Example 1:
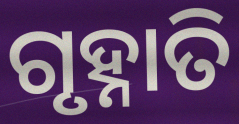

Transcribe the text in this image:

ଗୃହ୍ନାତି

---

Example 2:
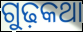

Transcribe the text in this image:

ଗୁଢ଼କଥା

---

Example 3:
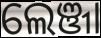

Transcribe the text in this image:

ଲେଞ୍ଜା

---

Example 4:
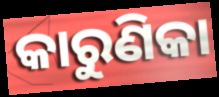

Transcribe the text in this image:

କାରୁଣିକା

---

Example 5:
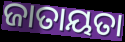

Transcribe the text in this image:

ଜାତାୟତା